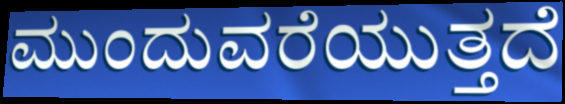
ಮುಂದುವರೆಯುತ್ತದೆ